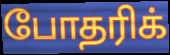
போதரிக்